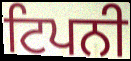
ਟਿਪਨੀ